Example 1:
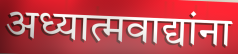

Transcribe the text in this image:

अध्यात्मवाद्यांना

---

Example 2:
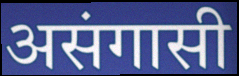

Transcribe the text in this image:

असंगासी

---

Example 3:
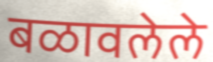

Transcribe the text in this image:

बळावलेले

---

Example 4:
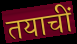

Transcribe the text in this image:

तयाचीं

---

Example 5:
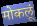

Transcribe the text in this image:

मोकलूं